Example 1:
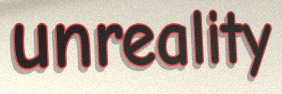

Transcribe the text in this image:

unreality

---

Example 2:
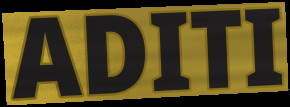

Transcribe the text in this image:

ADITI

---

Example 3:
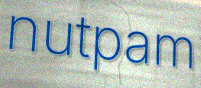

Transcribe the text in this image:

nutpam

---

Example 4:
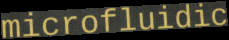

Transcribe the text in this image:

microfluidic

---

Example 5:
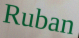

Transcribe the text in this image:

Ruban